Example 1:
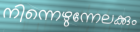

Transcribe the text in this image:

നിന്നെഴുന്നേലക്കും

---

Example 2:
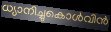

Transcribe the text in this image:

ധ്യാനിച്ചുകൊൾവിൻ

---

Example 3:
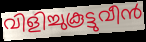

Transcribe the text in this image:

വിളിച്ചുകൂട്ടുവീൻ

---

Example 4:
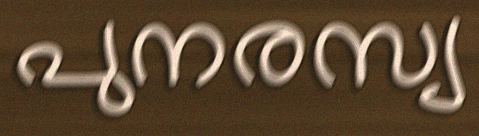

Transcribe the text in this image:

പുനരസ്യ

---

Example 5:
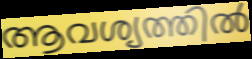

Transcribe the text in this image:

ആവശ്യത്തിൽ